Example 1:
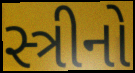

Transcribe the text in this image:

સ્ત્રીનો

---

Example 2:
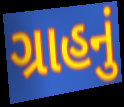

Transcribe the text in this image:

ગ્રાહનું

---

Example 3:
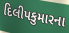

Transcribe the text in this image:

દિલીપકુમારના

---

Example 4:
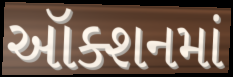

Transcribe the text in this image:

ઑક્શનમાં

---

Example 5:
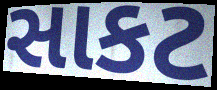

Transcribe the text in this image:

સાકટ